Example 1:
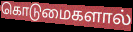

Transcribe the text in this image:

கொடுமைகளால்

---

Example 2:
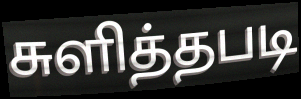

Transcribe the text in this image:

சுளித்தபடி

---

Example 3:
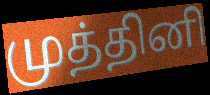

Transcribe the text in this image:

முத்தினி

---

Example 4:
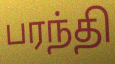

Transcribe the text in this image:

பரந்தி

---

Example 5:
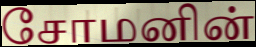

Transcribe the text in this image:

சோமனின்